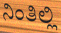
ನಿಂತಿಲ್ಲಿ